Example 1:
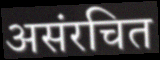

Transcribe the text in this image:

असंरचित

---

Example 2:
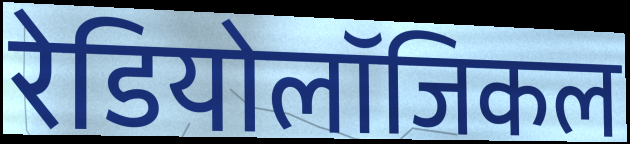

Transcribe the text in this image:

रेडियोलॉजिकल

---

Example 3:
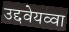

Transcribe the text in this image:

उद्दवेयव्वा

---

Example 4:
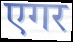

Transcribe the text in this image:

एगर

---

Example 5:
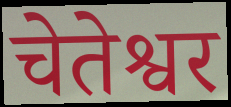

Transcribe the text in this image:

चेतेश्वर